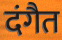
दंगैत